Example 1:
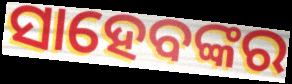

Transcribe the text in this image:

ସାହେବଙ୍କର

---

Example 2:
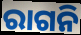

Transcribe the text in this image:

ରାଗନି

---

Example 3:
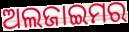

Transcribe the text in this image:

ଅଲଜାଇମର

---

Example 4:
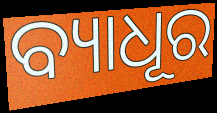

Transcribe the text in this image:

ବ୍ୟାଧୂର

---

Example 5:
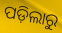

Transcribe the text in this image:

ପଡ଼ିଲାରୁ